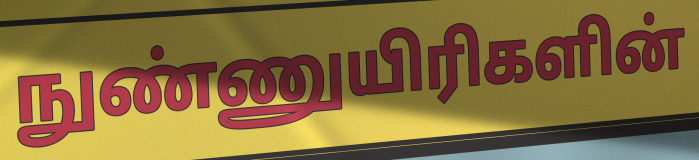
நுண்ணுயிரிகளின்